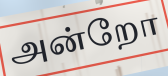
அன்றோ